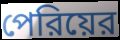
পেরিয়ের